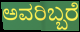
ಅವರಿಬ್ಬರೆ